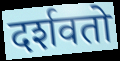
दर्शवतो